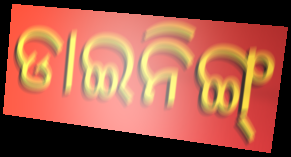
ଡାଇନିଙ୍ଗ୍